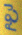
ఫై